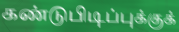
கண்டுபிடிப்புக்குக்